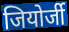
जियोर्जी